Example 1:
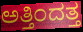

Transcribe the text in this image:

ಅತ್ತಿಂದತ್ತ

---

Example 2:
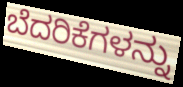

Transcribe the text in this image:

ಬೆದರಿಕೆಗಳನ್ನು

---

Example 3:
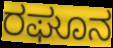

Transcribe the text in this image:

ರಘೂನ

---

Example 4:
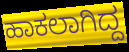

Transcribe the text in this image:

ಹಾಕಲಾಗಿದ್ದ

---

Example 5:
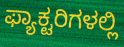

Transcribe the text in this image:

ಫ್ಯಾಕ್ಟರಿಗಳಲ್ಲಿ